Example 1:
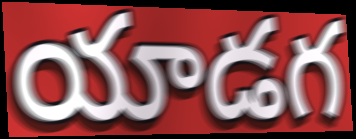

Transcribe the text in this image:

యాడగ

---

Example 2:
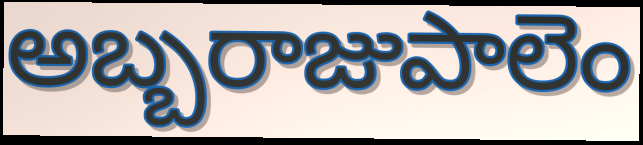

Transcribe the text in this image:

అబ్బరాజుపాలెం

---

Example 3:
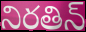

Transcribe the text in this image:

నిరతిన్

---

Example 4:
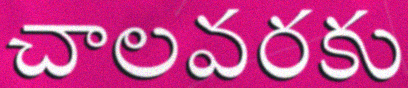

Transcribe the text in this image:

చాలవరకు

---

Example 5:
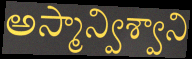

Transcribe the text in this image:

అస్మాన్విశ్వాని